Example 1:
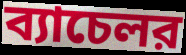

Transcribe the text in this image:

ব্যাচেলর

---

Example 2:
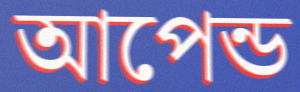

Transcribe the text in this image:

আপেন্ড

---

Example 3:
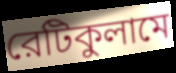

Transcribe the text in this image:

রেটিকুলামে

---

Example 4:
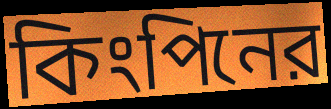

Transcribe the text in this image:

কিংপিনের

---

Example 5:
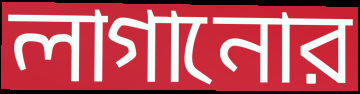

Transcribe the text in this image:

লাগানোর